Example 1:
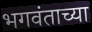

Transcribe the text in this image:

भगवंताच्या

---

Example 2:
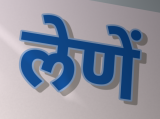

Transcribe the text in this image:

लेणें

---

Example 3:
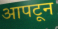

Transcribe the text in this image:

आपटून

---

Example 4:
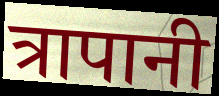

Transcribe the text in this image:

त्रापानी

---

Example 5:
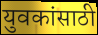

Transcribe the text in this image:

युवकांसाठी